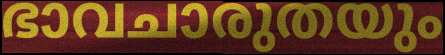
ഭാവചാരുതയും